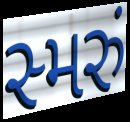
સ્મરું